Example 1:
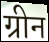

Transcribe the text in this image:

ग्रीन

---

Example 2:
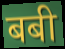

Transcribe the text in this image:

बबी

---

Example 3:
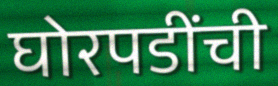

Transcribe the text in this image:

घोरपडींची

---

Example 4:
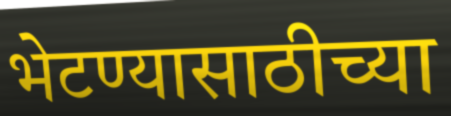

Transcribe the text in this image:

भेटण्यासाठीच्या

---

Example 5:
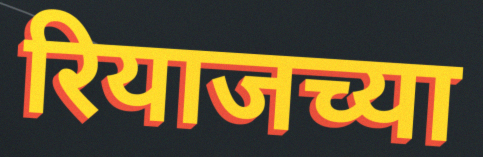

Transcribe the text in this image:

रियाजच्या